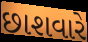
છાશવારે